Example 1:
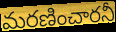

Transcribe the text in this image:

మరణించారనీ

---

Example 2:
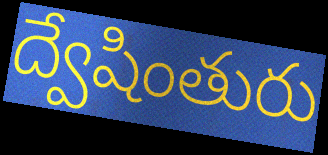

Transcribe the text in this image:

ద్వేషింతురు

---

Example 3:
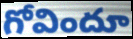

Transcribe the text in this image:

గోవిందూ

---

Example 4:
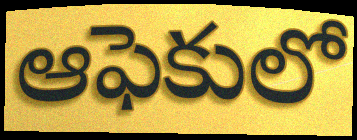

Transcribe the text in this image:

ఆఫెకులో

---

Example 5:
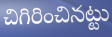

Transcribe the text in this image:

చిగిరించినట్టు